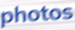
photos